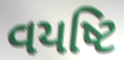
વયષ્ટિ